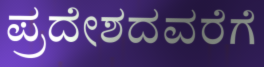
ಪ್ರದೇಶದವರೆಗೆ